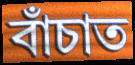
বাঁচাত